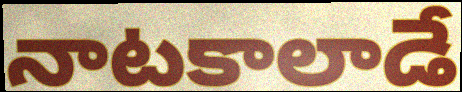
నాటకాలాడే